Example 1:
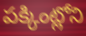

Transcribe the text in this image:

పక్కింట్లోని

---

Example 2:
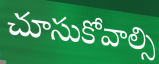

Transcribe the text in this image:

చూసుకోవాల్సి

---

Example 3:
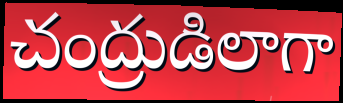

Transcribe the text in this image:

చంద్రుడిలాగా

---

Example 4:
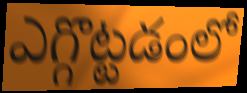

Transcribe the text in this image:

ఎగ్గొట్టడంలో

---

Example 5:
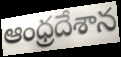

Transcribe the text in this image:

ఆంధ్రదేశాన